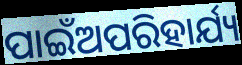
ପାଇଁଅପରିହାର୍ଯ୍ୟ